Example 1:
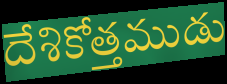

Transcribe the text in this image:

దేశికోత్తముడు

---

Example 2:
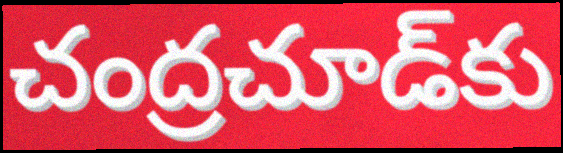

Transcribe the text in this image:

చంద్రచూడ్‌కు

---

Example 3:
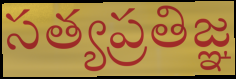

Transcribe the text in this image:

సత్యప్రతిజ్ఞ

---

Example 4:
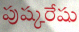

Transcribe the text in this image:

పుష్కరేషు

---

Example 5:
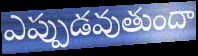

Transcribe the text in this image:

ఎప్పుడవుతుందా